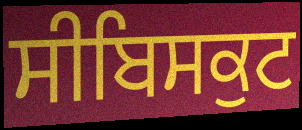
ਸੀਬਿਸਕੁਟ